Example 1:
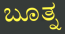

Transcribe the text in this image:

ಬೂತ್ನ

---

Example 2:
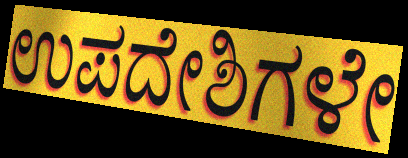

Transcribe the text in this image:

ಉಪದೇಶಿಗಳೇ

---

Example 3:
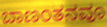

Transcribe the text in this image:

ಬಾಣಂತನವೂ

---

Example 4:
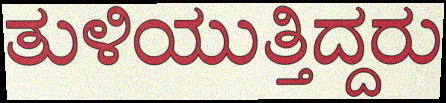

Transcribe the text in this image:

ತುಳಿಯುತ್ತಿದ್ದರು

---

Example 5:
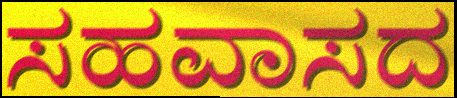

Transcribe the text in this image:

ಸಹವಾಸದ